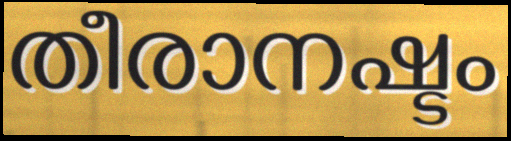
തീരാനഷ്ടം